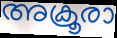
അക്രൂരാ